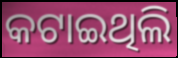
କଟାଇଥିଲି